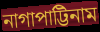
নাগাপাট্টিনাম